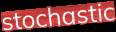
stochastic